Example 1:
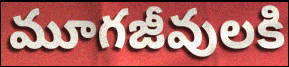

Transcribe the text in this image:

మూగజీవులకి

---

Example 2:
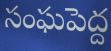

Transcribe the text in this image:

సంఘపెద్ద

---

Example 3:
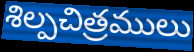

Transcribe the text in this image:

శిల్పచిత్రములు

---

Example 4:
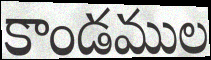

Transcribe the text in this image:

కాండముల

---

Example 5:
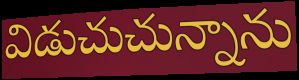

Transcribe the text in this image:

విడుచుచున్నాను